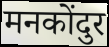
मनकोंदुर